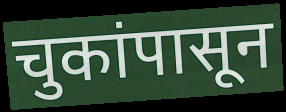
चुकांपासून